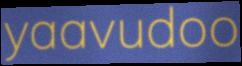
yaavudoo